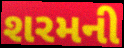
શરમની